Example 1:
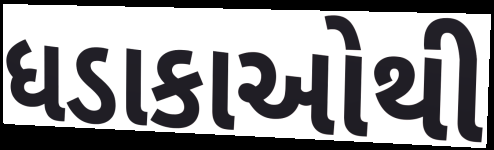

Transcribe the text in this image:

ધડાકાઓથી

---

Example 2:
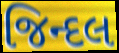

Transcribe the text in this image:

જિન્દલ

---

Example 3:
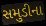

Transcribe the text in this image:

સમુડીના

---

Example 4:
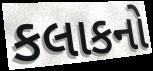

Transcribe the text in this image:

કલાકનો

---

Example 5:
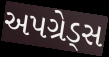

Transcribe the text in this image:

અપગ્રેડ્સ